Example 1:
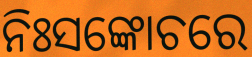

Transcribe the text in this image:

ନିଃସଙ୍କୋଚରେ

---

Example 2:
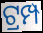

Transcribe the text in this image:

ଟ୍ରମ୍ପ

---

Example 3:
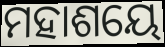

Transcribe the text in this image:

ମହାଶୟେ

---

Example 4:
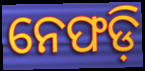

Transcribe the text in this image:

ନେଫଡ଼ି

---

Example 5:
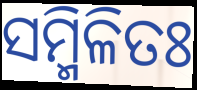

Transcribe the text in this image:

ସମ୍ମିଳିତଃ